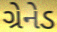
ગ્રેનેડ